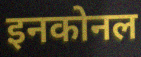
इनकोनल